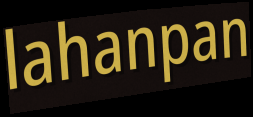
lahanpan